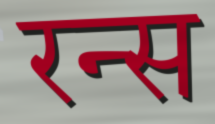
रन्स